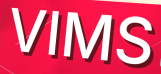
VIMS